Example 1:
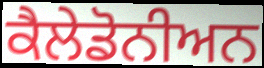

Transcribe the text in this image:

ਕੈਲੇਡੋਨੀਅਨ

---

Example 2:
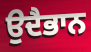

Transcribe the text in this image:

ਉਦੈਭਾਨ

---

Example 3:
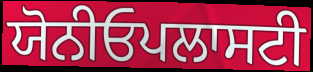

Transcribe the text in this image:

ਯੋਨੀਓਪਲਾਸਟੀ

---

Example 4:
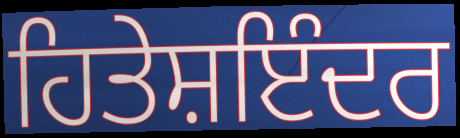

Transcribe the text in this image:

ਹਿਤੇਸ਼ਇੰਦਰ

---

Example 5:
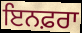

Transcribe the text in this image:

ਇਨਫ਼ਰਾ